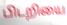
பிடறியை